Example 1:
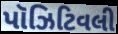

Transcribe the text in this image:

પૉઝિટિવલી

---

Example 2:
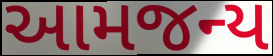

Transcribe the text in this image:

આમજન્ય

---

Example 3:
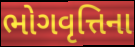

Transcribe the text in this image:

ભોગવૃત્તિના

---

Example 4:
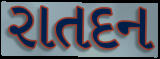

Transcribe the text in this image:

રાતદન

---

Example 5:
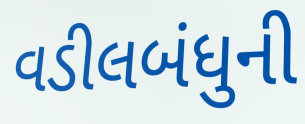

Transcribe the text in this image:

વડીલબંધુની